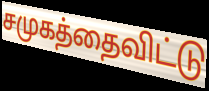
சமுகத்தைவிட்டு